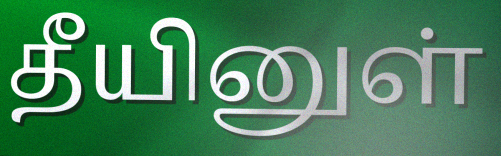
தீயினுள்